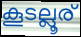
കൂടല്ലൂര്